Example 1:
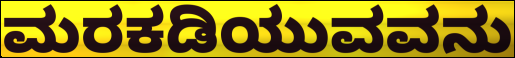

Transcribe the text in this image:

ಮರಕಡಿಯುವವನು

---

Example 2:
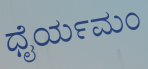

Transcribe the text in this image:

ಧೈರ್ಯಮಂ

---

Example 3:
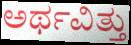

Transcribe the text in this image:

ಅರ್ಥವಿತ್ತು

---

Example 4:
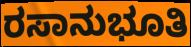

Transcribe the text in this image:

ರಸಾನುಭೂತಿ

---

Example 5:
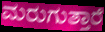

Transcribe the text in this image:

ಮರುಗುತ್ತಾರೆ